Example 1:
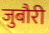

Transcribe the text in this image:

जुबौरी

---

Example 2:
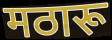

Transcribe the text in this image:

मठारू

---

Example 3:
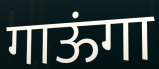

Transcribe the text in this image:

गाऊंगा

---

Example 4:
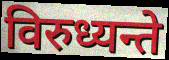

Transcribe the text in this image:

विरुध्यन्ते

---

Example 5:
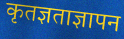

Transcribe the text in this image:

कृतज्ञताज्ञापन